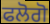
ਫਲੋਗੋ